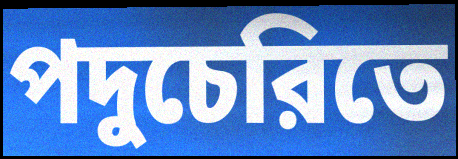
পদুচেরিতে